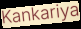
Kankariya